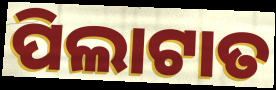
ପିଲାଟାତ